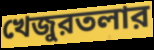
খেজুরতলার